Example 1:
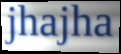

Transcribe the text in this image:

jhajha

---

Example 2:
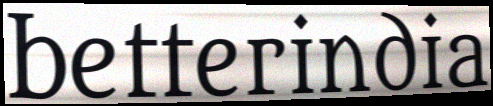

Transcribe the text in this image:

betterindia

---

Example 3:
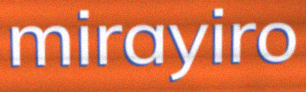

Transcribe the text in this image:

mirayiro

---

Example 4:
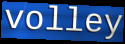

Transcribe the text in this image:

volley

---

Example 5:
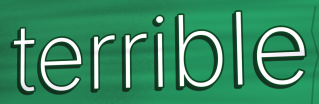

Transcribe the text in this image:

terrible